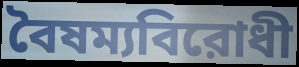
বৈষম্যবিরোধী